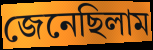
জেনেছিলাম